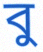
বু